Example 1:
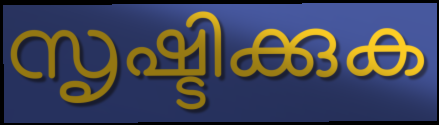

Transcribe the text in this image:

സൃഷ്ടിക്കുക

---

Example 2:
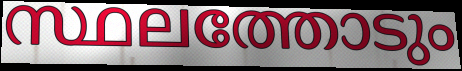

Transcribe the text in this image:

സ്ഥലത്തോടും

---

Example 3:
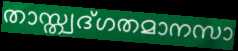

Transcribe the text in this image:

താസ്ത്വദ്ഗതമാനസാ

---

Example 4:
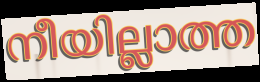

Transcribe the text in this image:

നീയില്ലാത്ത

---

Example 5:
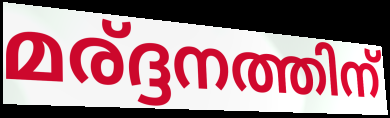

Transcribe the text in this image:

മര്ദ്ദനത്തിന്